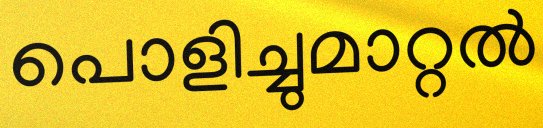
പൊളിച്ചുമാറ്റൽ